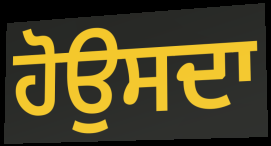
ਹੋਉਸਦਾ